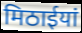
मिठाईयां